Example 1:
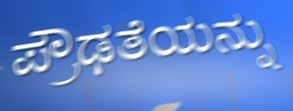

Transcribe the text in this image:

ಪ್ರೌಢತೆಯನ್ನು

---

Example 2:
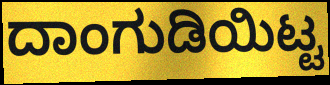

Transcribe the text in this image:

ದಾಂಗುಡಿಯಿಟ್ಟ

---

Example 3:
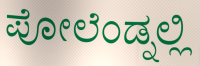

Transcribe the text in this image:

ಪೋಲೆಂಡ್ನಲ್ಲಿ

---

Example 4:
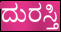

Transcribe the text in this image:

ದುರಸ್ತಿ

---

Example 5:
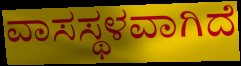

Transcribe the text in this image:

ವಾಸಸ್ಥಳವಾಗಿದೆ